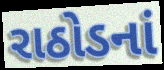
રાઠોડનાં